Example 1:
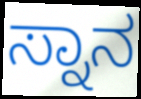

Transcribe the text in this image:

ಸ್ನಾನ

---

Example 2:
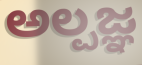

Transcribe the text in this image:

ಅಲ್ಪಜ್ಞ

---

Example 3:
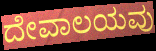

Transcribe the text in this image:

ದೇವಾಲಯವು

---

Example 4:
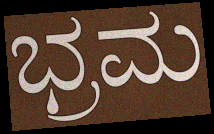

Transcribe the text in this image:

ಭ್ರಮ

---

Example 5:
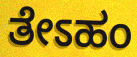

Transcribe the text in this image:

ತೇಽಹಂ